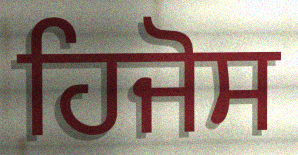
ਹਿਜੋਸ